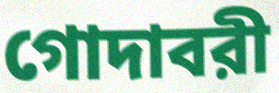
গোদাবরী